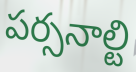
పర్సనాల్టి